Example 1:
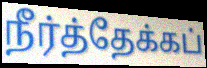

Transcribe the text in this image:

நீர்த்தேக்கப்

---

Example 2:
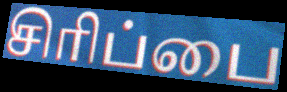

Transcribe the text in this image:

சிரிப்பை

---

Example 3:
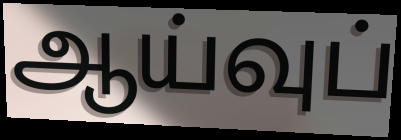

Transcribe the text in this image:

ஆய்வுப்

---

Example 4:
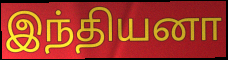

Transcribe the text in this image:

இந்தியனா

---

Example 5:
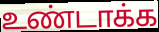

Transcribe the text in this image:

உண்டாக்க